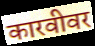
कारवीवर